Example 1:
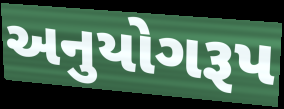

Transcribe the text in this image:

અનુયોગરૂપ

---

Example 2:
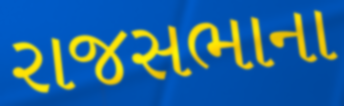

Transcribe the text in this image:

રાજસભાના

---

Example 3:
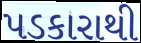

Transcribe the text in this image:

પડકારાથી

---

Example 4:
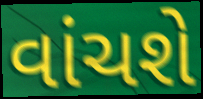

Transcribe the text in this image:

વાંચશે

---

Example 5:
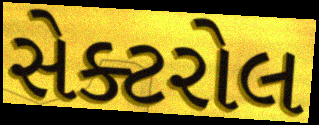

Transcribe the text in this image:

સેક્ટરોલ